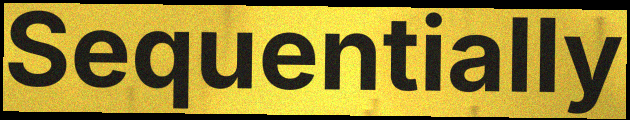
Sequentially